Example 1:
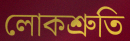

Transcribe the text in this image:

লোকশ্রুতি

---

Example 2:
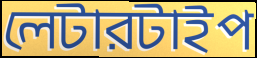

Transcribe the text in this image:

লেটারটাইপ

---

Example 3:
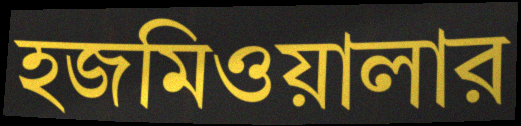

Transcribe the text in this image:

হজমিওয়ালার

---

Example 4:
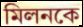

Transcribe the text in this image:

মিলনকে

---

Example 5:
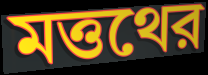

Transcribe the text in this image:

মত্তথের